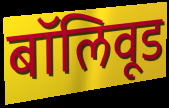
बॉलिवूड